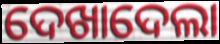
ଦେଖାଦେଲା